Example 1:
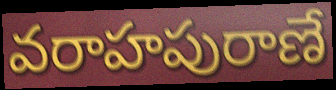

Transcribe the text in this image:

వరాహపురాణే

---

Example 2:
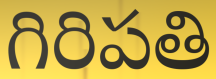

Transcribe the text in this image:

గిరిపతి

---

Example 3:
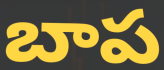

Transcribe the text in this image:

బాప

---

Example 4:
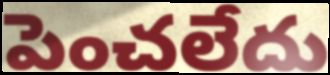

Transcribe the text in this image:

పెంచలేదు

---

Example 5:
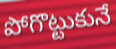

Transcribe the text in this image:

పోగొట్టుకునే